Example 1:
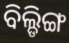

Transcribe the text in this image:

ବିଲ୍ଡିଙ୍ଗ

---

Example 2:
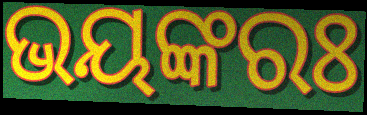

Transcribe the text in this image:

ଭୟଙ୍କରଃ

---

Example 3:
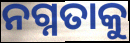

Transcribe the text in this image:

ନଗ୍ନତାକୁ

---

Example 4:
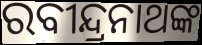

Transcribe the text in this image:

ରବୀନ୍ଦ୍ରନାଥଙ୍କ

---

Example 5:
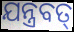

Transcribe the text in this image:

ଯନ୍ତ୍ରବତ୍